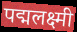
पद्मलक्ष्मी